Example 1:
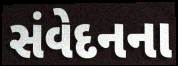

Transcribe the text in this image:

સંવેદનના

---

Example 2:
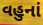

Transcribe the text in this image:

વહુનાં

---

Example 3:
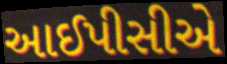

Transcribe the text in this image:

આઈપીસીએ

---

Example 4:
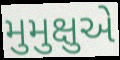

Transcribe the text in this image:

મુમુક્ષુએ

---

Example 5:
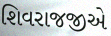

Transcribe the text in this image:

શિવરાજજીએ